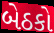
બેઠકો